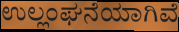
ಉಲ್ಲಂಘನೆಯಾಗಿವೆ